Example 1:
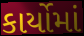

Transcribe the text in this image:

કાર્યોમાં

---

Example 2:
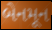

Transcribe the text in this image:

બેનમૂન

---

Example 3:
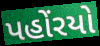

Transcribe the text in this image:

પહોંરયો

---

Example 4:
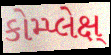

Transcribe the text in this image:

કોમ્પ્લેક્ષ્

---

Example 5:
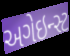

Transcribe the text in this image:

અગેઇન્સ્ટ